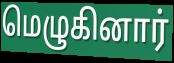
மெழுகினார்